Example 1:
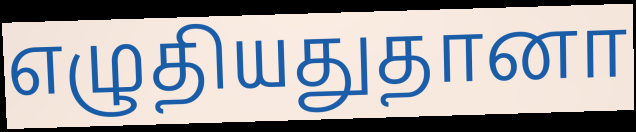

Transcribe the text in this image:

எழுதியதுதானா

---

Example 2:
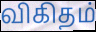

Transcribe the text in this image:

விகிதம்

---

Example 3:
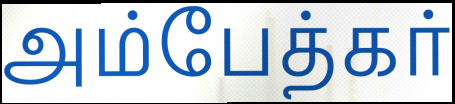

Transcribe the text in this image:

அம்பேத்கர்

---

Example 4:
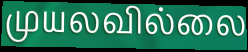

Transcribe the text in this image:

முயலவில்லை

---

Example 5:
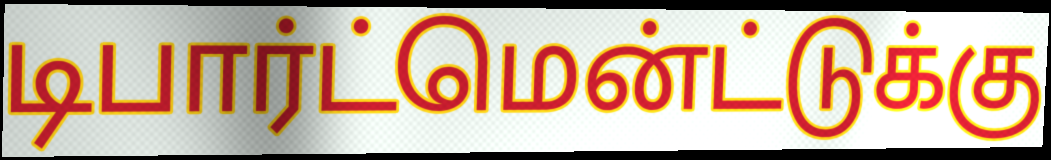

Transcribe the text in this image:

டிபார்ட்மென்ட்டுக்கு